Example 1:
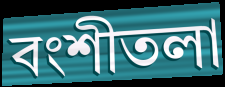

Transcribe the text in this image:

বংশীতলা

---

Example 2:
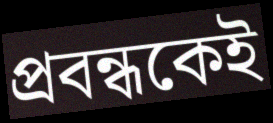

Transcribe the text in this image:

প্রবন্ধকেই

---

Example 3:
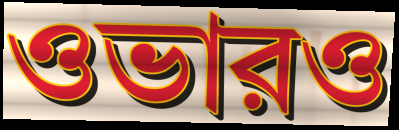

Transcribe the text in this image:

ওভারও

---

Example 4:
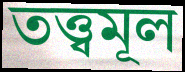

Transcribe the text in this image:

তত্ত্বমূল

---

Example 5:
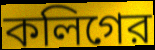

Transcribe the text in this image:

কলিগের